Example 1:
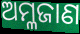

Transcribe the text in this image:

ଅମ୍ଳଜାଣ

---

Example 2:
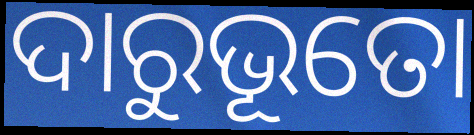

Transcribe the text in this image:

ଦାରୁଭୂତୋ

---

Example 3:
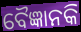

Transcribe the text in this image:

ବୈଜ୍ଞାନକି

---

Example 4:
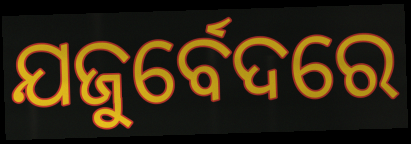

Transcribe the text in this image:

ଯଜୁର୍ବେଦରେ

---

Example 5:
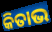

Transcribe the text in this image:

କିତାଭ